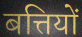
बत्तियों